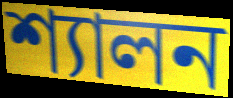
শ্যালন